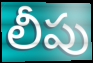
లీపు